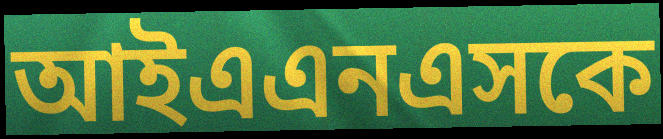
আইএএনএসকে